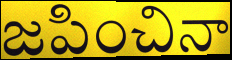
జపించినా